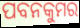
ପବନକୁମର